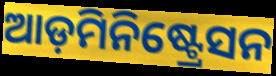
ଆଡ଼ମିନିଷ୍ଟ୍ରେସନ